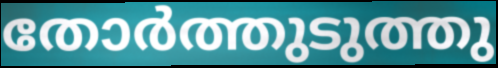
തോർത്തുടുത്തു